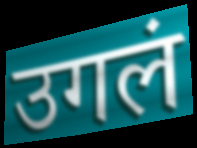
उगलं